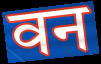
वन